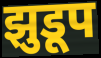
झुडूप